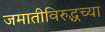
जमातीविरुद्धच्या